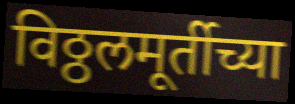
विठ्ठलमूर्तीच्या